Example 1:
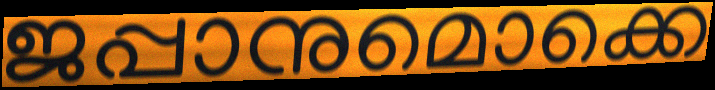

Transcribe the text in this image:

ജപ്പാനുമൊക്കെ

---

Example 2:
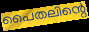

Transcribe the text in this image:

പൈതലിന്റെ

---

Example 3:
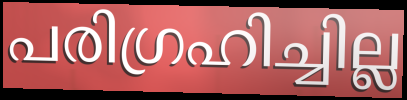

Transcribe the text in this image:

പരിഗ്രഹിച്ചില്ല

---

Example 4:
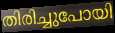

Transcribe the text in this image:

തിരിച്ചുപോയി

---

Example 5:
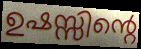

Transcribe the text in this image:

ഉഷസ്സിന്റെ